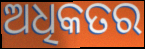
ଅଧିକତର